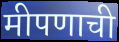
मीपणाची